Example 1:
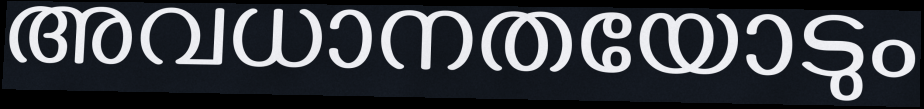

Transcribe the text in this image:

അവധാനതയോടും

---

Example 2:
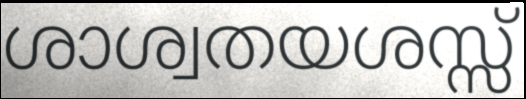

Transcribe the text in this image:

ശാശ്വതയശസ്സ്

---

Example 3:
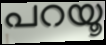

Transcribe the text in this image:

പറയൂ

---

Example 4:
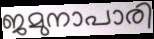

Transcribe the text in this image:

ജമുനാപാരി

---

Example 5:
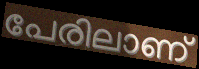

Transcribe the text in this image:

പേരിലാണ്